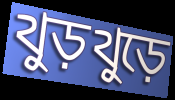
থুড়থুড়ে